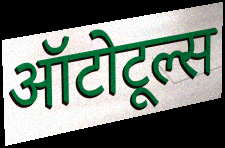
ऑटोटूल्स